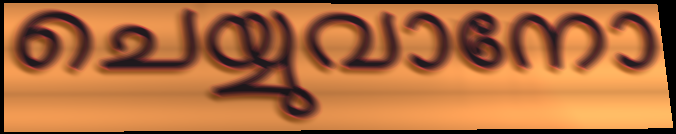
ചെയ്യുവാനോ